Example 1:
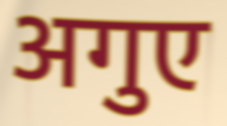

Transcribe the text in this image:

अगुए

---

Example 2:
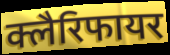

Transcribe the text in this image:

क्लैरिफायर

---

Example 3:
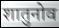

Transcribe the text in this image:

शातुनोव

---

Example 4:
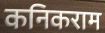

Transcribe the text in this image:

कनिकराम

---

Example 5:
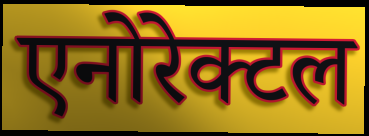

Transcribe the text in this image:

एनोरेक्टल